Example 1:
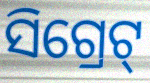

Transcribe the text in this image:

ସିଗ୍ରେଟ୍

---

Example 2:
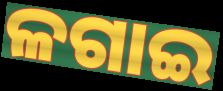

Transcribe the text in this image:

ଳଗାଇ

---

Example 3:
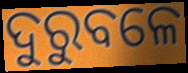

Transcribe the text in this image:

ଦୁରୁବଳେ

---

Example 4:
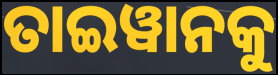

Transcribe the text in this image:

ତାଇୱାନକୁ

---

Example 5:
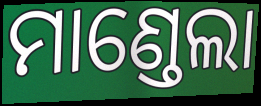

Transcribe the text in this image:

ମାଣ୍ଡେଲା